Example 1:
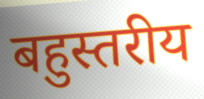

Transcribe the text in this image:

बहुस्तरीय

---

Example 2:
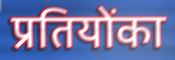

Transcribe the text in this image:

प्रतियोंका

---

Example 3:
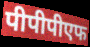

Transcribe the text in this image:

पीपीपीएफ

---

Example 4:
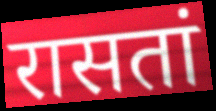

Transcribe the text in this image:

रासतां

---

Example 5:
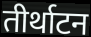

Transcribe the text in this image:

तीर्थाटन